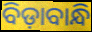
ବିଡ଼ାବାନ୍ଧି